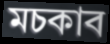
মচকাব